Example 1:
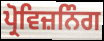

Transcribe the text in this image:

ਪ੍ਰੋਵਿਜ਼ਨਿੰਗ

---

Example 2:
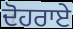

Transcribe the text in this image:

ਦੋਹਰਾਏ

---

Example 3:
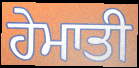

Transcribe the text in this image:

ਹੇਮਾਤੀ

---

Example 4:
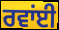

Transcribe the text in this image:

ਰਵਾਂਈ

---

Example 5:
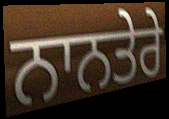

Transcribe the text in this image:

ਨਾਨਤੇਰੇ